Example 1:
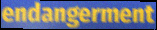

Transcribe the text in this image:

endangerment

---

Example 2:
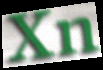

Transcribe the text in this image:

Xn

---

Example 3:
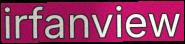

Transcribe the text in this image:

irfanview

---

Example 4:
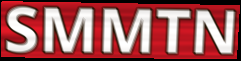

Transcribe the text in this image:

SMMTN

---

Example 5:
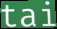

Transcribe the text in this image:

tai